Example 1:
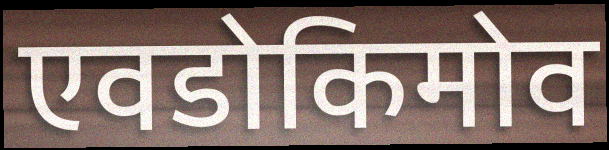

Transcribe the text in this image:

एवडोकिमोव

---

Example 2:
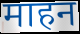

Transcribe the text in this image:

माहन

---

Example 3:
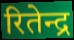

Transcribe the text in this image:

रितेन्द्र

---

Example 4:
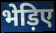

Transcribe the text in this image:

भेड़िए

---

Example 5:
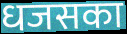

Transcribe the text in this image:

धजसका